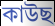
কাউছ